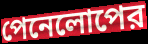
পেনেলোপের